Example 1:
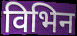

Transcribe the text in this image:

विभिन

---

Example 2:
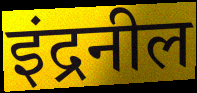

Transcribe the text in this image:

इंद्रनील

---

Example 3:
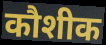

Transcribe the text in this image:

कौशीक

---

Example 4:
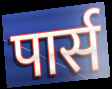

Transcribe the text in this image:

पार्स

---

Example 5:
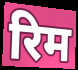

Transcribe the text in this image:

रिम